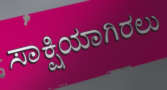
ಸಾಕ್ಷಿಯಾಗಿರಲು